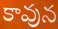
కావున